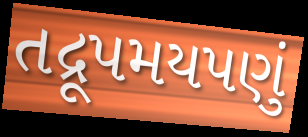
તદ્રૂપમયપણું